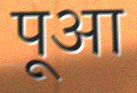
पूआ